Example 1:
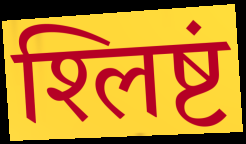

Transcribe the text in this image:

श्लिष्टं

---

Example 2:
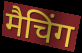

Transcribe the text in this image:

मैचिंग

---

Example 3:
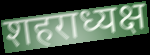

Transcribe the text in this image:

शहराध्यक्ष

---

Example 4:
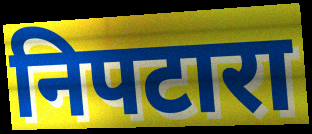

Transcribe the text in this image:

निपटारा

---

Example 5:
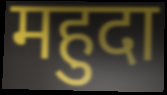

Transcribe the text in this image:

महुदा